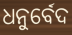
ଧନୁର୍ବେଦ